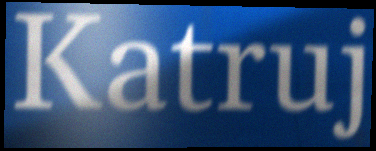
Katruj